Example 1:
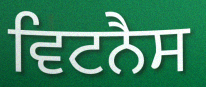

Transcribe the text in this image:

ਵਿਟਨੈਸ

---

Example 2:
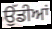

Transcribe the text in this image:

ਉੱਡੀਆਂ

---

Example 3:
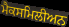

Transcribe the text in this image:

ਮੈਕਸਮਿਲੀਅਨ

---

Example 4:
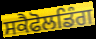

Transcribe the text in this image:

ਸਕੈਫੋਲਡਿੰਗ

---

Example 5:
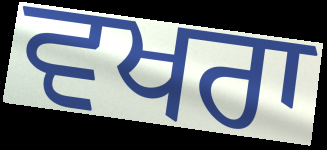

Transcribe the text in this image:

ਵਖਰਾ